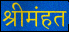
श्रीमंहत